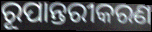
ରୂପାନ୍ତରୀକରଣ